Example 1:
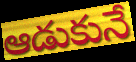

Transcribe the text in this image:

ఆడుకునే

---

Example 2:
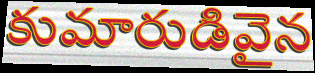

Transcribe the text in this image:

కుమారుడివైన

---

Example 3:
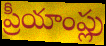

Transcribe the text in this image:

ప్రీయాంప్లు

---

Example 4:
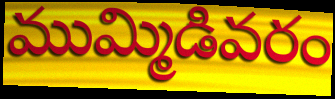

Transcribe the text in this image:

ముమ్మిడివరం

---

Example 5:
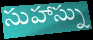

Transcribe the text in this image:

సుహాస్ను